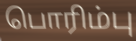
பொரிம்பு